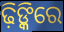
ଢ଼ିଙ୍କିରେ